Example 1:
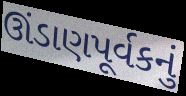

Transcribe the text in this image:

ઊંડાણપૂર્વકનું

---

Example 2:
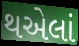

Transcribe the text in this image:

થએલાં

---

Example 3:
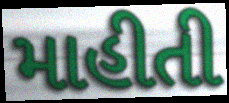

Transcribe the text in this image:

માહીતી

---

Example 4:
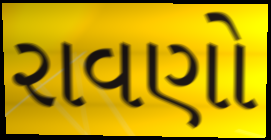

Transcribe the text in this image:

રાવણો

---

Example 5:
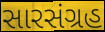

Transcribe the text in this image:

સારસંગ્રહ